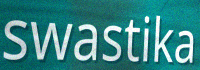
swastika